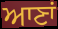
ਆਣਾਂ